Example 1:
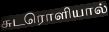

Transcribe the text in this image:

சுடரொளியால்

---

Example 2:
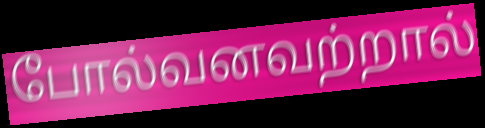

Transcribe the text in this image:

போல்வனவற்றால்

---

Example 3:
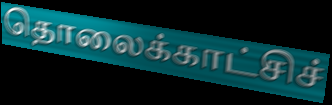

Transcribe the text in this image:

தொலைக்காட்சிச்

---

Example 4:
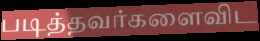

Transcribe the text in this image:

படித்தவர்களைவிட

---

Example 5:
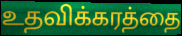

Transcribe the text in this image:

உதவிக்கரத்தை